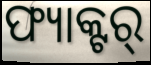
ଫ୍ୟାକ୍ଟର୍